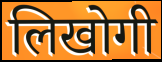
लिखोगी